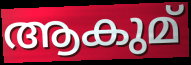
ആകുമ്